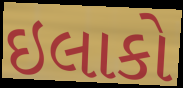
ઇલાકો